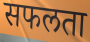
सफलता